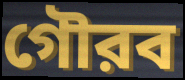
গৌরব